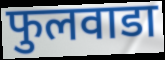
फुलवाडा